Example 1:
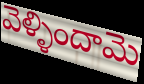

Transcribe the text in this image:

వెళ్ళిందామె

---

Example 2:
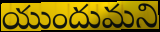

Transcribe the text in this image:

యుందుమని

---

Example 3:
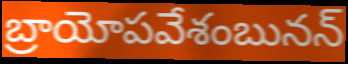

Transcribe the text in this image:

బ్రాయోపవేశంబునన్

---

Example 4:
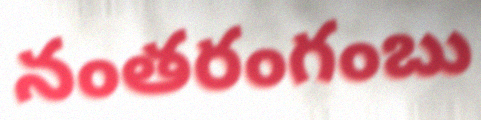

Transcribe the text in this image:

నంతరంగంబు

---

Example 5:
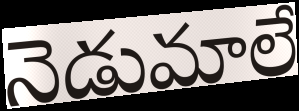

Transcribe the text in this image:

నెడుమాలే